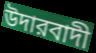
উদারবাদী